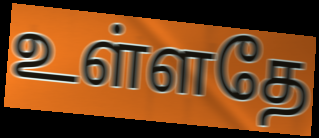
உள்ளதே